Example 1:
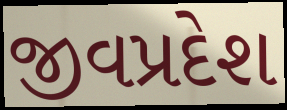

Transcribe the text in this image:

જીવપ્રદેશ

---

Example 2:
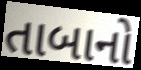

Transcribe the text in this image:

તાબાનો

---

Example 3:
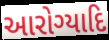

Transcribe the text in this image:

આરોગ્યાદિ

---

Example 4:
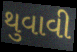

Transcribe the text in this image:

થુવાવી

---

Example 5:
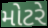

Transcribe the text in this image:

મોટરે